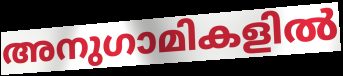
അനുഗാമികളിൽ